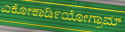
ಎಕೋಕಾರ್ಡಿಯೋಗ್ರಾಮ್